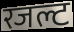
रजल्ट